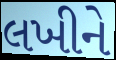
લખીને